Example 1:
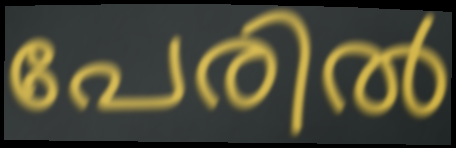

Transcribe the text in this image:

പേരിൽ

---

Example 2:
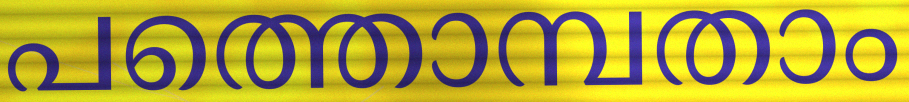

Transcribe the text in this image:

പത്തൊമ്പതാം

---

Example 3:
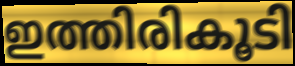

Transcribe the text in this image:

ഇത്തിരികൂടി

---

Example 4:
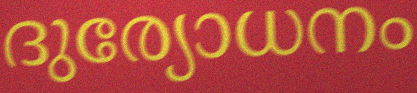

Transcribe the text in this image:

ദുര്യോധനം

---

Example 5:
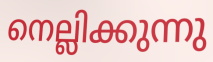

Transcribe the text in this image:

നെല്ലിക്കുന്നു